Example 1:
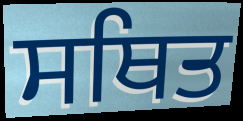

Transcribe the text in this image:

ਸਥਿਤ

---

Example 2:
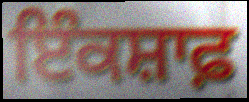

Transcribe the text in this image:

ਇੰਕਸ਼ਾਫ਼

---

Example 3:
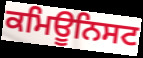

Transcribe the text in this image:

ਕਮਿਊਨਿਸਟ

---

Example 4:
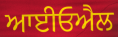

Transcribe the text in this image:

ਆਈਓਐਲ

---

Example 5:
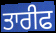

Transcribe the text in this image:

ਤਾਰੀਫ